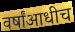
वर्षांआधीच